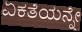
ಏಕತೆಯನ್ನೇ